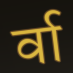
र्वा